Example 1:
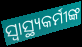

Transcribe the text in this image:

ସ୍ବାସ୍ଥ୍ୟକର୍ମୀଙ୍କ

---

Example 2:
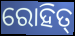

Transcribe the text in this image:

ରୋହିତ୍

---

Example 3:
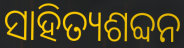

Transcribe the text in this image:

ସାହିତ୍ୟଶବ୍ଦନ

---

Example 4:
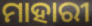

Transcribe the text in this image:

ମାହାରୀ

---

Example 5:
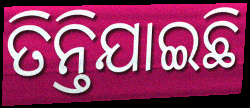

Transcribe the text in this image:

ତିନ୍ତିଯାଇଛି